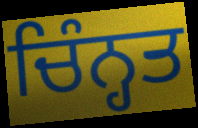
ਚਿੰਨ੍ਹਤ